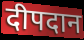
दीपदान